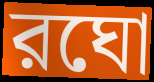
রঘো